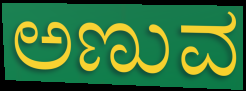
ಅಣುವ